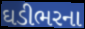
ઘડીભરના